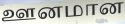
ஊனமான